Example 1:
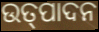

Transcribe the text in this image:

ଉତ୍‍ପାଦନ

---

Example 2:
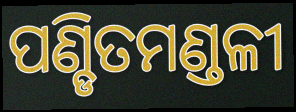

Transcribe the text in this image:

ପଣ୍ଡିତମଣ୍ଡଳୀ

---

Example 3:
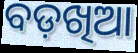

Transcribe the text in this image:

ବଡ଼ଖିଆ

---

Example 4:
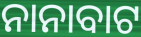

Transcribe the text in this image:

ନାନାବାଟ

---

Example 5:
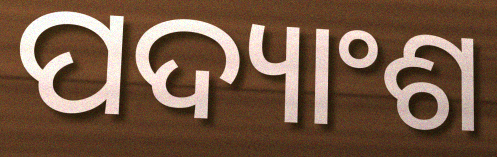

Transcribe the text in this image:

ପଦ୍ୟାଂଶ